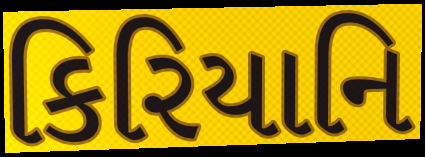
કિરિયાનિ